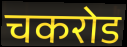
चकरोड